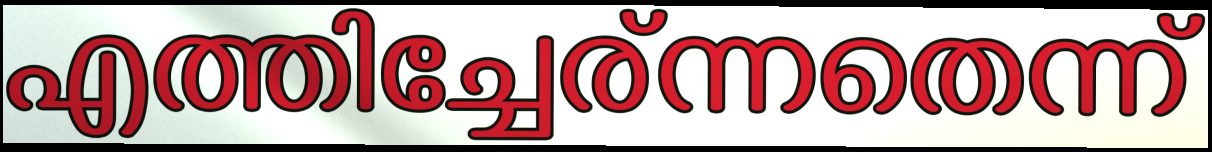
എത്തിച്ചേര്ന്നതെന്ന്